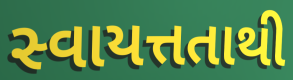
સ્વાયત્તતાથી